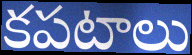
కపటాలు